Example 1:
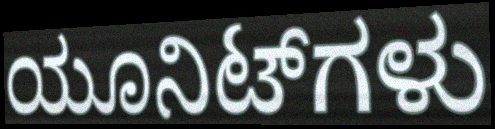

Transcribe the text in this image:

ಯೂನಿಟ್‌ಗಳು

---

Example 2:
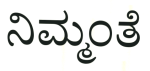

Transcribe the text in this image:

ನಿಮ್ಮಂತೆ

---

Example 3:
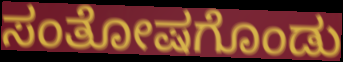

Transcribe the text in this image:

ಸಂತೋಷಗೊಂಡು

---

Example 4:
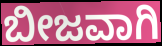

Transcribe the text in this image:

ಬೀಜವಾಗಿ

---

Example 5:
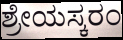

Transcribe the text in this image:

ಶ್ರೇಯಸ್ಕರಂ